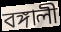
বঙ্গালী